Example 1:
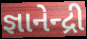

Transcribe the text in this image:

જ્ઞાનેન્દ્રી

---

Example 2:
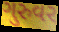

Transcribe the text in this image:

ગુરુવર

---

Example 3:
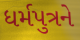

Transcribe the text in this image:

ધર્મપુત્રને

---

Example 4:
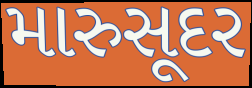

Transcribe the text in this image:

મારુસૂદર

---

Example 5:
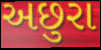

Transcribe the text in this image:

અછુરા